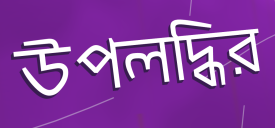
উপলদ্ধির